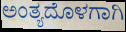
ಅಂತ್ಯದೊಳಗಾಗಿ